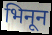
भिनून